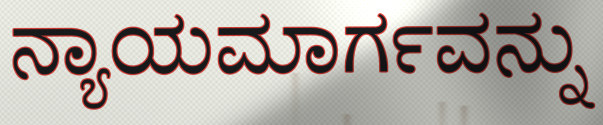
ನ್ಯಾಯಮಾರ್ಗವನ್ನು